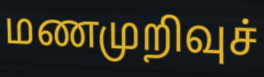
மணமுறிவுச்